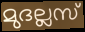
മുദല്ലസ്